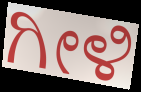
ಗೀಳಿ